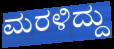
ಮರಳಿದ್ದು